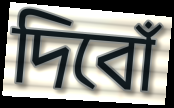
দিবোঁ